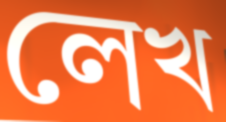
লেখ